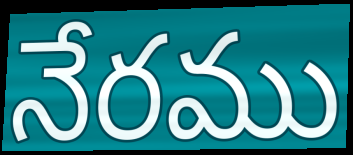
నేరము